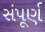
સંપૂર્ણ